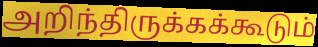
அறிந்திருக்கக்கூடும்